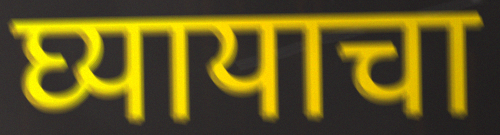
घ्यायाचा